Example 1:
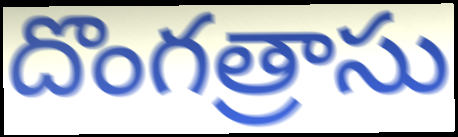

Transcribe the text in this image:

దొంగత్రాసు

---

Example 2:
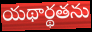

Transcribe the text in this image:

యథార్థతను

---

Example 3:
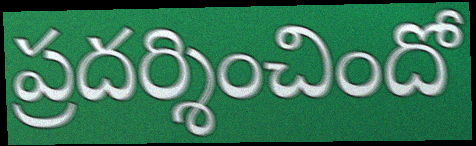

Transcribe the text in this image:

ప్రదర్శించిందో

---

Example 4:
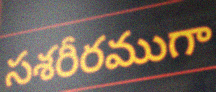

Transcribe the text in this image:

సశరీరముగా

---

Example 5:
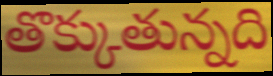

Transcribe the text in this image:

తొక్కుతున్నది